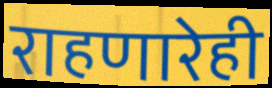
राहणारेही